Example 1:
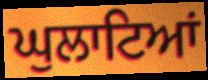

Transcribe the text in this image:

ਘੁਲਾਟਿਆਂ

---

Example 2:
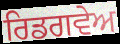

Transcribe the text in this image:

ਰਿਡਗਵੇਅ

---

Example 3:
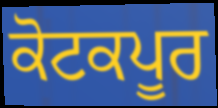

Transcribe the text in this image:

ਕੋਟਕਪੂਰ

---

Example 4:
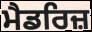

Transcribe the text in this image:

ਮੈਡਰਿਜ਼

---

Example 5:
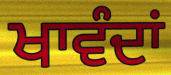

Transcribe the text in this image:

ਖਾਵੰਦਾਂ